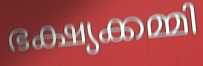
ഭക്ഷ്യക്കമ്മി